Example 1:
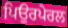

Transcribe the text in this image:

ਪਿਉਰਪੇਰਲ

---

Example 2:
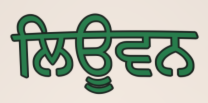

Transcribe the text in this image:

ਲਿਊਵਨ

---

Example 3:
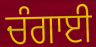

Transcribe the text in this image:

ਚੰਗਾਈ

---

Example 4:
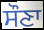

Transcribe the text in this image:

ਸੌਣਾ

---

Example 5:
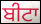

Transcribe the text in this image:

ਬੀਟਾ